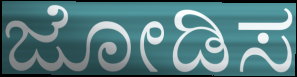
ಜೋಡಿಸ